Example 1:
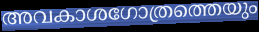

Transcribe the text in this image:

അവകാശഗോത്രത്തെയും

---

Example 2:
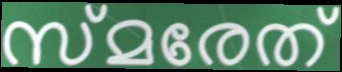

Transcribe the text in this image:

സ്മരേത്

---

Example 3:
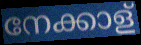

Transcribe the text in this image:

നേക്കാള്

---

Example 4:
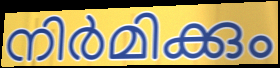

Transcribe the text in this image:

നിർമിക്കും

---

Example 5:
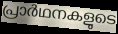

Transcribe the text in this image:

പ്രാർഥനകളുടെ